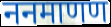
ननमाणण